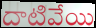
దాటివేయి